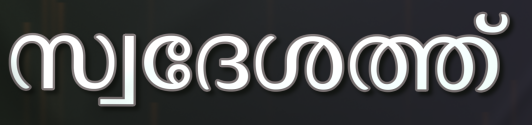
സ്വദേശത്ത്